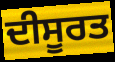
ਦੀਸੂਰਤ